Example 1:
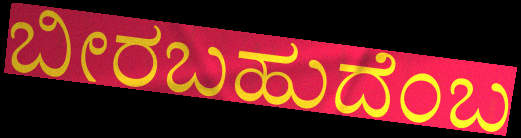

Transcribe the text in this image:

ಬೀರಬಹುದೆಂಬ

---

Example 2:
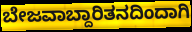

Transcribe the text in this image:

ಬೇಜವಾಬ್ದಾರಿತನದಿಂದಾಗಿ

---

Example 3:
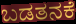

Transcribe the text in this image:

ಬಡತನಕೆ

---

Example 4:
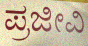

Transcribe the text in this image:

ಪ್ರಜೀವಿ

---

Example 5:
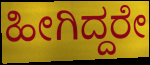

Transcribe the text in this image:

ಹೀಗಿದ್ದರೇ